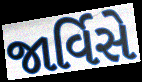
જાર્વિસે